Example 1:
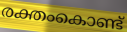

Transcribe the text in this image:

രക്തംകൊണ്ട്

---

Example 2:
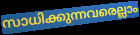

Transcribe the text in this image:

സാധിക്കുന്നവരെല്ലാം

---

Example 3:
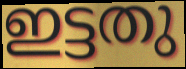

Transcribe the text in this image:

ഇട്ടതു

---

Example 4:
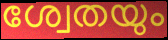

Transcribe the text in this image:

ശ്വേതയും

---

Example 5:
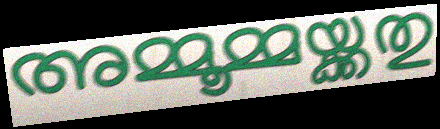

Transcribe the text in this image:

അമ്മൂമ്മയ്ക്കതു